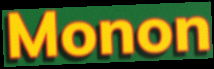
Monon